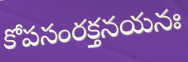
కోపసంరక్తనయనః